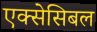
एक्सेसिबल